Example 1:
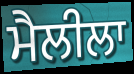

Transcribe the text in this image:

ਮੈਲੀਲਾ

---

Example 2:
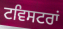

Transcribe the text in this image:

ਟਵਿਸਟਰਾਂ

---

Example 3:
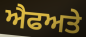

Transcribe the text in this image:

ਐਫਅਤੇ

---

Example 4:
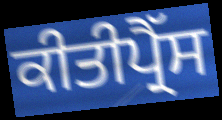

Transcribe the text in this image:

ਕੀਤੀਪ੍ਰੈੱਸ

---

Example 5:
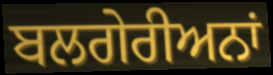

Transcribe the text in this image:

ਬਲਗੇਰੀਅਨਾਂ